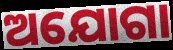
ଅଯୋଗା